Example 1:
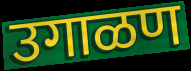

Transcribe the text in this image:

उगाळण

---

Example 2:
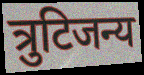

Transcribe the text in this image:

त्रुटिजन्य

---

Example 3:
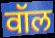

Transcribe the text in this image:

वॉल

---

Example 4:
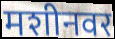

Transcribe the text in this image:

मशीनवर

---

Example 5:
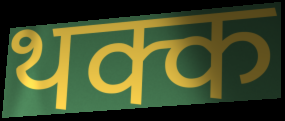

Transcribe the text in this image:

थक्क